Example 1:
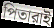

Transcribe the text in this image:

পিতারাই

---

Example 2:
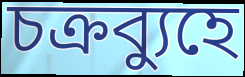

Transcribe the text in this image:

চক্রব্যুহে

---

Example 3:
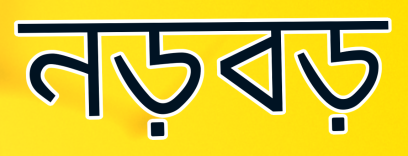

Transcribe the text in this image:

নড়বড়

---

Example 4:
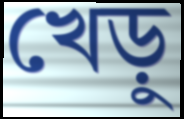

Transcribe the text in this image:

খেড়ু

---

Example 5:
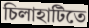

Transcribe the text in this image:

চিলাহাটিতে